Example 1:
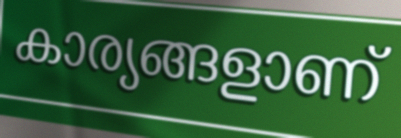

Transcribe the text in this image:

കാര്യങ്ങളാണ്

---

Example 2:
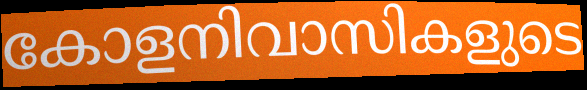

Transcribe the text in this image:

കോളനിവാസികളുടെ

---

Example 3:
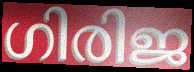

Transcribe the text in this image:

ഗിരിജ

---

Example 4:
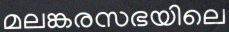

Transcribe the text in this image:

മലങ്കരസഭയിലെ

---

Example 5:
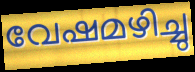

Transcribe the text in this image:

വേഷമഴിച്ചു